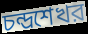
চন্দ্রশেখর